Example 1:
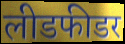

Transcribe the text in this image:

लीडफीडर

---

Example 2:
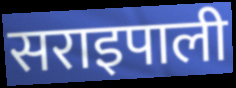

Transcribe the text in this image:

सराइपाली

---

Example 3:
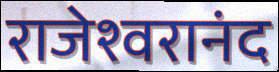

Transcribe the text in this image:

राजेश्वरानंद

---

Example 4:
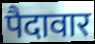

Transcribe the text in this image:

पैदावार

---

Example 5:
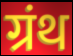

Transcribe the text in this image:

ग्रंथ